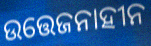
ଉତ୍ତେଜନାହୀନ